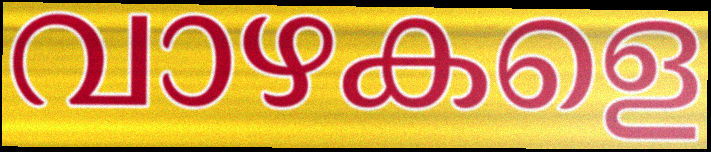
വാഴകളെ